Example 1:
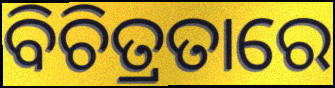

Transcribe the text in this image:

ବିଚିତ୍ରତାରେ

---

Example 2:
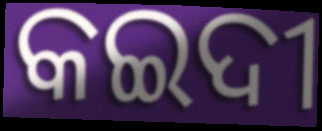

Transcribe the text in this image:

କଇଦୀ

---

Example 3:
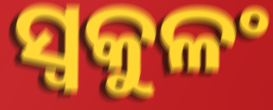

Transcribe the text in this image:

ସ୍ୱକୁଳଂ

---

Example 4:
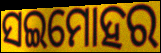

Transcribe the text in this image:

ସଇମୋହର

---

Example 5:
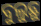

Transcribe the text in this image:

ବୁଲୁଛୁ